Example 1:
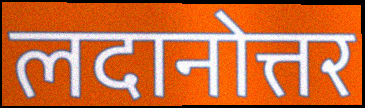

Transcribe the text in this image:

लदानोत्तर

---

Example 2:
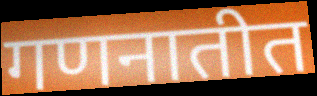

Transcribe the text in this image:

गणनातीत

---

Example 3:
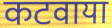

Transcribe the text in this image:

कटवाया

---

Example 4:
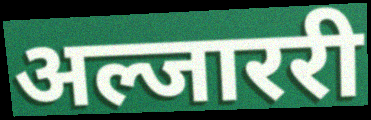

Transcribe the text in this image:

अल्जाररी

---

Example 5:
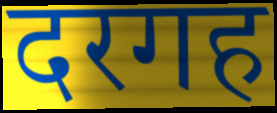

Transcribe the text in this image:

दरगह